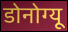
डोनोग्यू